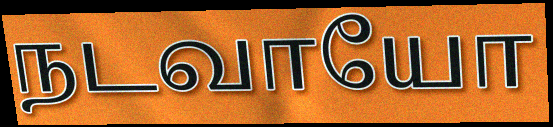
நடவாயோ